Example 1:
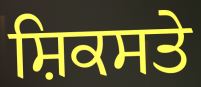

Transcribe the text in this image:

ਸ਼ਿਕਸਤੇ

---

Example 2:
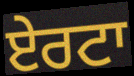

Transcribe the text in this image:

ਏਰਟਾ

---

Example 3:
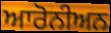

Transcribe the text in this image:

ਆਰੋਨੀਅਨ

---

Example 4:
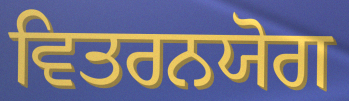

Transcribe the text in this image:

ਵਿਤਰਨਯੋਗ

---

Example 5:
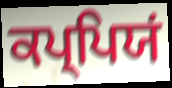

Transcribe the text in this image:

ਕਪ੍ਪਿਯਂ